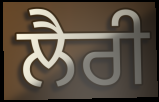
ਲੈਰੀ